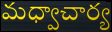
మధ్వాచార్య